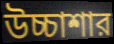
উচ্চাশার